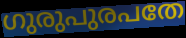
ഗുരുപുരപതേ